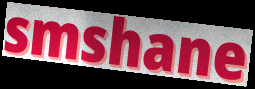
smshane